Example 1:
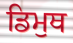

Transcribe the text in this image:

ਡਿਮੁਥ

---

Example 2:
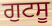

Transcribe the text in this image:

ਗੁਟਸੂ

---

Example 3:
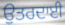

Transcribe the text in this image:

ਉਤਰਦਾਈ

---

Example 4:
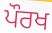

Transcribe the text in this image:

ਪੌਰਖ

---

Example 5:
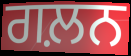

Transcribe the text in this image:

ਗਲ਼ਨ